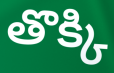
తొక్కి